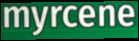
myrcene